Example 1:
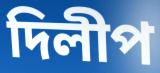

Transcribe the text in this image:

দিলীপ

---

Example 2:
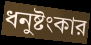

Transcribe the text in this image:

ধনুষ্টংকার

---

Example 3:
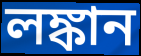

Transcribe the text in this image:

লঙ্কান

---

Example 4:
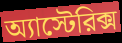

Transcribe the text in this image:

অ্যাস্টেরিক্স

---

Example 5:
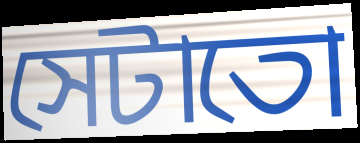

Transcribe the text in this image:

সেটাতো